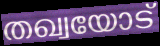
തഖ്വയോട്